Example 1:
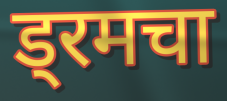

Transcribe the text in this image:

ड्रमचा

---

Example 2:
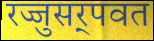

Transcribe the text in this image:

रज्जुसर्पवत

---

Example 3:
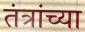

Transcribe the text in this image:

तंत्रांच्या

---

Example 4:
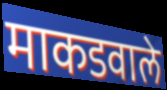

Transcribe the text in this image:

माकडवाले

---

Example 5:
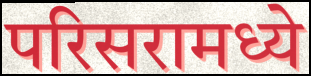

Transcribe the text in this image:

परिसरामध्ये